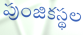
పుంజికస్థల